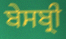
ਬੇਸਬ੍ਰੀ